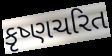
કૃષ્ણચરિત